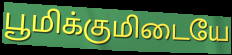
பூமிக்குமிடையே